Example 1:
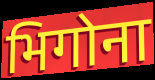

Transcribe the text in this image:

भिगोना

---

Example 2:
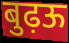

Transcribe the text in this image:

बुढ़ऊ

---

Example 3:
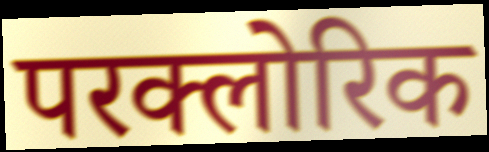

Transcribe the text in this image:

परक्लोरिक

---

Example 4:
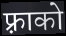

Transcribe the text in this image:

फ़्राको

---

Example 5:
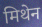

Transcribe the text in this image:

मिथेन